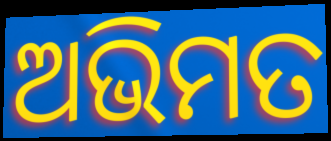
ଅଭିମତ